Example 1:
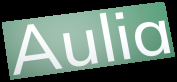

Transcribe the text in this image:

Aulia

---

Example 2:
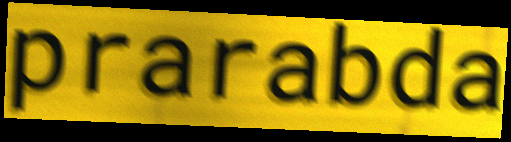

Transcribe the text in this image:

prarabda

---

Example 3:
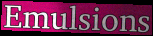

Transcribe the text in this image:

Emulsions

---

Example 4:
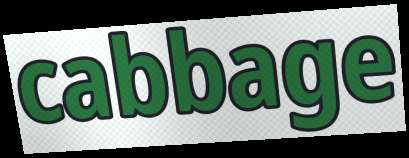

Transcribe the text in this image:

cabbage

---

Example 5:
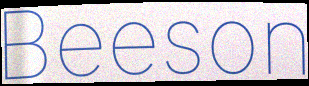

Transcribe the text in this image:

Beeson